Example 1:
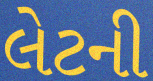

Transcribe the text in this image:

લેટની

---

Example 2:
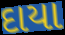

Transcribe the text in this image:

દાયા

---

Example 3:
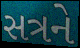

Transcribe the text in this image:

સત્રને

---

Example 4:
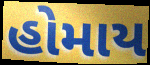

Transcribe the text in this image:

હોમાય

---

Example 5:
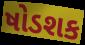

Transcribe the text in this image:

ષોડશક